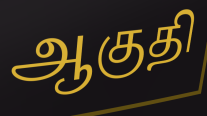
ஆகுதி